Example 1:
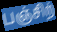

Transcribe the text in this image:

பஞ்சிற்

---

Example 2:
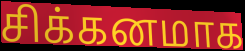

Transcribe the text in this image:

சிக்கனமாக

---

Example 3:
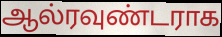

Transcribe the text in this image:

ஆல்ரவுண்டராக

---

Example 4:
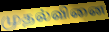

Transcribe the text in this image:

முதல்வினை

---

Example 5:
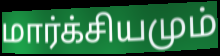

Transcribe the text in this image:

மார்க்சியமும்